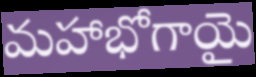
మహాభోగాయై